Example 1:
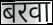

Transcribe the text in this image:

बरवा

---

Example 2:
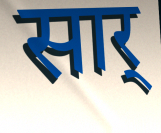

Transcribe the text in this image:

सार्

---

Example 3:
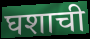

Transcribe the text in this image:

घशाची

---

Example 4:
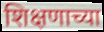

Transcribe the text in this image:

शिक्षणाच्या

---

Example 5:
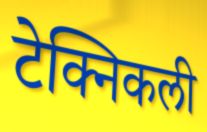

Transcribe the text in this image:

टेक्निकली